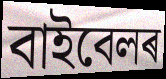
বাইবেলৰ